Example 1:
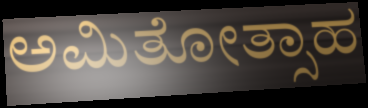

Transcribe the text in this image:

ಅಮಿತೋತ್ಸಾಹ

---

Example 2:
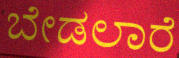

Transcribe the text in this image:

ಬೇಡಲಾರೆ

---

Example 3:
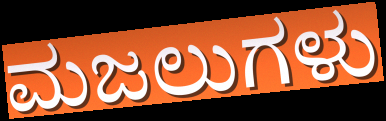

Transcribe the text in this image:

ಮಜಲುಗಳು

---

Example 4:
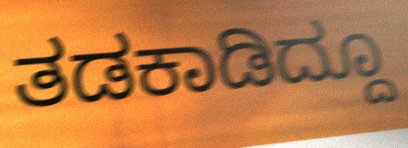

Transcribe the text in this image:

ತಡಕಾಡಿದ್ದೂ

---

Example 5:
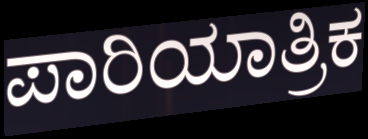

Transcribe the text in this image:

ಪಾರಿಯಾತ್ರಿಕ